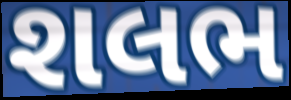
શલભ